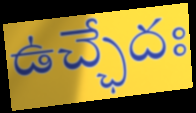
ఉచ్ఛేదః